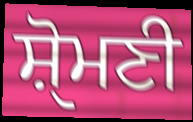
ਸ਼ੑੋਮਣੀ